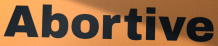
Abortive